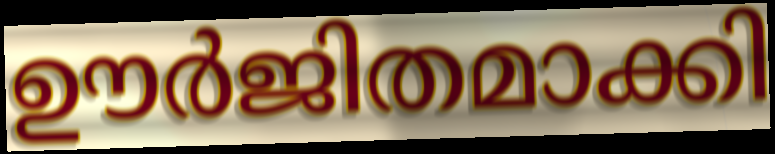
ഊർജിതമാക്കി